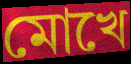
মোখে